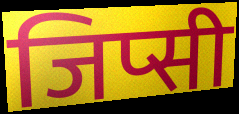
जिप्सी